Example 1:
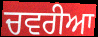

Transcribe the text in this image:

ਚਵਰੀਆ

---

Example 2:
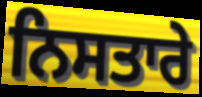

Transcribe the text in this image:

ਨਿਸਤਾਰੇ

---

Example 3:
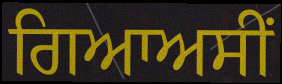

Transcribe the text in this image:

ਗਿਆਅਸੀਂ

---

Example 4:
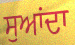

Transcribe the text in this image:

ਸੁਆਂਦਾ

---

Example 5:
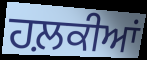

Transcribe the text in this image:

ਹਲ਼ਕੀਆਂ